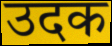
उदक